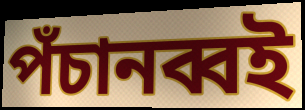
পঁচানব্বই